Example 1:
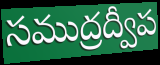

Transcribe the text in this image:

సముద్రద్వీప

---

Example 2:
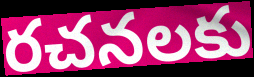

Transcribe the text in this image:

రచనలకు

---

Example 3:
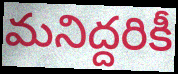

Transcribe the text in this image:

మనిద్దరికీ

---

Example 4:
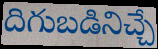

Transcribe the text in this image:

దిగుబడినిచ్చే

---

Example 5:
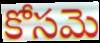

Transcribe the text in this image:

కోసమె